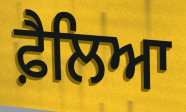
ਫ਼ੈਲਿਆ